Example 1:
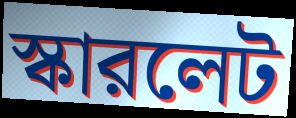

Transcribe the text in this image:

স্কারলেট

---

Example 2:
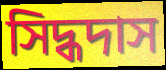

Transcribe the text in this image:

সিদ্ধদাস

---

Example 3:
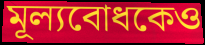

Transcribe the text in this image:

মূল্যবোধকেও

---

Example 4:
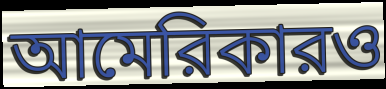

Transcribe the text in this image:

আমেরিকারও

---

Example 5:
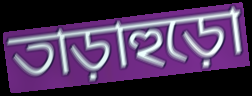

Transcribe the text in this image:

তাড়াহুড়ো